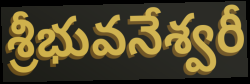
శ్రీభువనేశ్వరీ